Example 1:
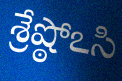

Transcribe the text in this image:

శ్రేష్ఠోఽసి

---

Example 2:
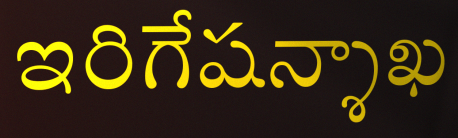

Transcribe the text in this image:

ఇరిగేషన్శాఖ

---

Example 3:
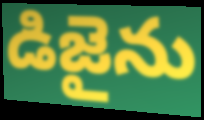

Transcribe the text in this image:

డిజైను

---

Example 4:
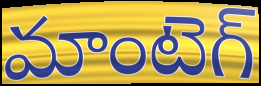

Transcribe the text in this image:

మాంటెగ్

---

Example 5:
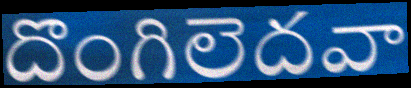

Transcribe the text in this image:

దొంగిలెదవా